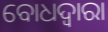
ବୋଧଦ୍ଵାରା